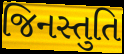
જિનસ્તુતિ